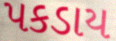
પકડાય